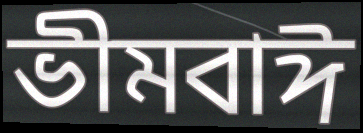
ভীমবাঈ